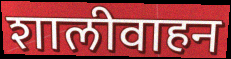
शालीवाहन